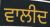
ਵਾਲੀਦ